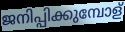
ജനിപ്പിക്കുമ്പോള്